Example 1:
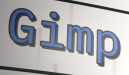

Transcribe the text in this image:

Gimp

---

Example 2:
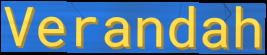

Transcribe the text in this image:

Verandah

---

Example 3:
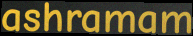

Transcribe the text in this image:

ashramam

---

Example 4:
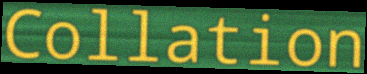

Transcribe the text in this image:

Collation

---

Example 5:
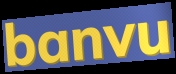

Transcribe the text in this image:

banvu